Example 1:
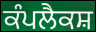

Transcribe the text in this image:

ਕੰਪਲੈਕਸ਼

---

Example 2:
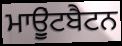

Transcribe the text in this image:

ਮਾਉੂਂਟਬੈਟਨ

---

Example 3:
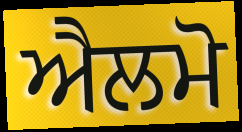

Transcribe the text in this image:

ਐਲਮੋ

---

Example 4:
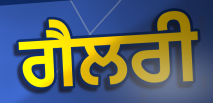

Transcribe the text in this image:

ਗੈਲਰੀ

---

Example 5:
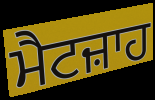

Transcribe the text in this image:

ਮੈਟਜ਼ਾਹ